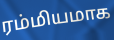
ரம்மியமாக